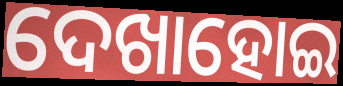
ଦେଖାହୋଇ